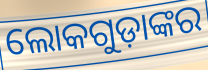
ଲୋକଗୁଡ଼ାଙ୍କର